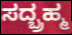
ಸದ್ಬ್ರಹ್ಮ